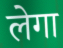
लेगा